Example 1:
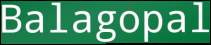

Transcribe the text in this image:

Balagopal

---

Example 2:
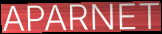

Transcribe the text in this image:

APARNET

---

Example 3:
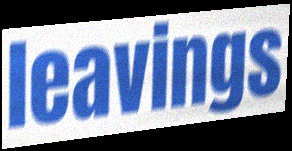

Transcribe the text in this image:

leavings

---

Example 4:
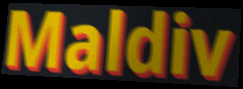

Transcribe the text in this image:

Maldiv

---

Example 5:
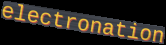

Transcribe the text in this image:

electronation